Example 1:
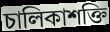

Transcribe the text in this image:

চালিকাশক্তি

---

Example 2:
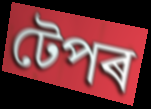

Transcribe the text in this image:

টেপৰ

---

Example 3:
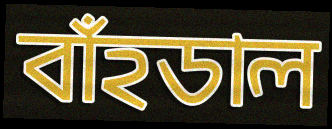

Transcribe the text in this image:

বাঁহডাল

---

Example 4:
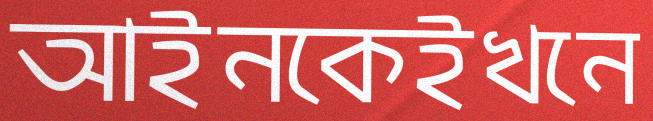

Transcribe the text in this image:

আইনকেইখনে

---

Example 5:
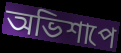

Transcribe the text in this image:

অভিশাপে